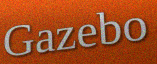
Gazebo